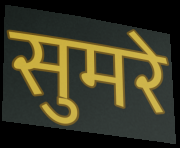
सुमरे